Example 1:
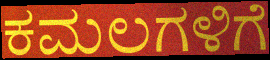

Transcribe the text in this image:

ಕಮಲಗಳಿಗೆ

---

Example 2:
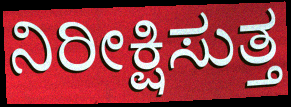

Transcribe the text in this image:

ನಿರೀಕ್ಷಿಸುತ್ತ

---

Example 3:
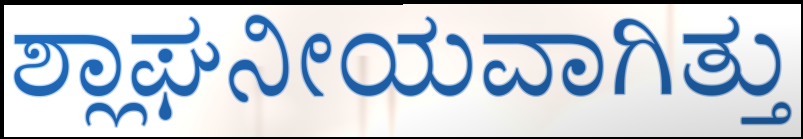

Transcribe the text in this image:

ಶ್ಲಾಘನೀಯವಾಗಿತ್ತು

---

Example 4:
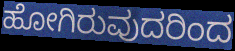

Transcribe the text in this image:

ಹೋಗಿರುವುದರಿಂದ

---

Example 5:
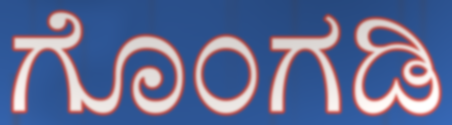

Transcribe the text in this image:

ಗೊಂಗಡಿ